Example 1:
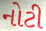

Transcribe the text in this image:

નોટી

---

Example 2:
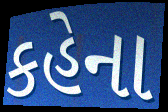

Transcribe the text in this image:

કહેના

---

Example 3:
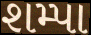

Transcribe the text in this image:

શમ્પા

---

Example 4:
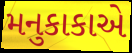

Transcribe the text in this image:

મનુકાકાએ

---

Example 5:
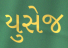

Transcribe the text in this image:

યુસેજ